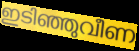
ഇടിഞ്ഞുവീണ